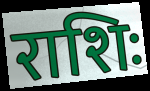
राशिः